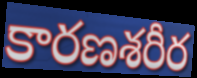
కారణశరీర